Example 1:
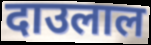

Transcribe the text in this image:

दाउलाल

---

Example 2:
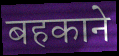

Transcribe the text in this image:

बहकाने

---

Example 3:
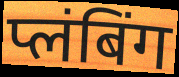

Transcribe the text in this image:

प्लंबिंग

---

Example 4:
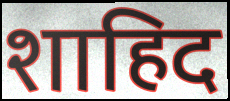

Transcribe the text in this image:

शाहिद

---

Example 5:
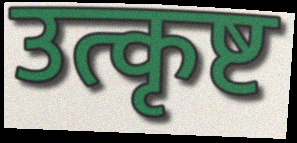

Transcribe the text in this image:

उत्कृष्ट